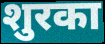
शुरका